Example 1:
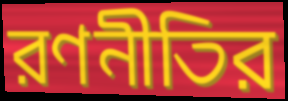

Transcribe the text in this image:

রণনীতির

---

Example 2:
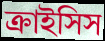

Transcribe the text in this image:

ক্রাইসিস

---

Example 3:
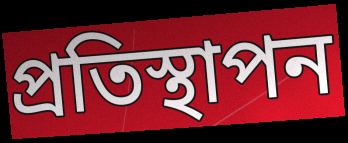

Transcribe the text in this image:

প্রতিস্থাপন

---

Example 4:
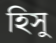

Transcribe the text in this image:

হিসু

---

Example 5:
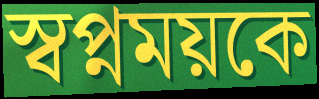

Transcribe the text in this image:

স্বপ্নময়কে